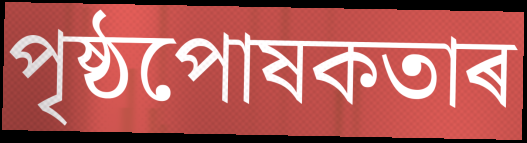
পৃষ্ঠপোষকতাৰ